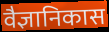
वैज्ञानिकास